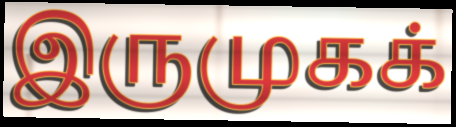
இருமுகக்